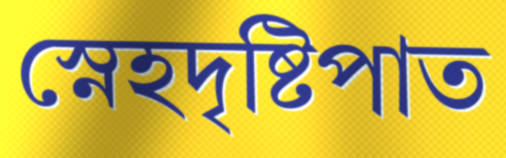
স্নেহদৃষ্টিপাত